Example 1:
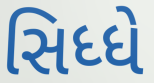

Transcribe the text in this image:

સિધ્ધે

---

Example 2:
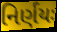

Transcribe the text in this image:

નિર્ણયઃ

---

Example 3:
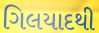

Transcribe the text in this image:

ગિલયાદથી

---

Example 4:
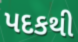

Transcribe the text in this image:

પદકથી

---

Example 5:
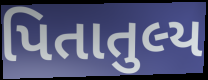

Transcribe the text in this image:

પિતાતુલ્ય